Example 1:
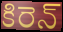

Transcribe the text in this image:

కిరెన్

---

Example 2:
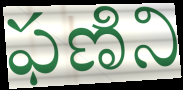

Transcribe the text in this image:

ఫణిని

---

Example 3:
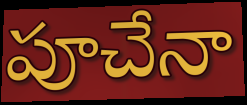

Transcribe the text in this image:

పూచేనా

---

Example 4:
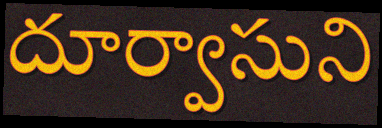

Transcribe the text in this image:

దూర్వాసుని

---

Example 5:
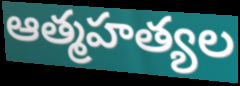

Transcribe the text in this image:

ఆత్మహత్యల